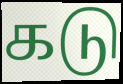
கடு